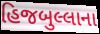
હિજબુલ્લાના